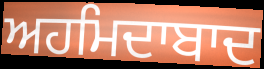
ਅਹਮਿਦਾਬਾਦ